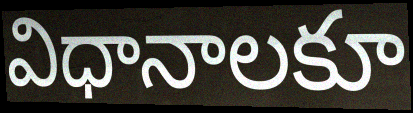
విధానాలకూ